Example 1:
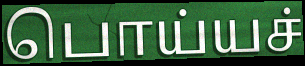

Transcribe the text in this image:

பொய்யச்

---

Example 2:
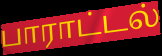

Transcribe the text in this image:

பாராட்டல்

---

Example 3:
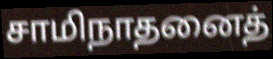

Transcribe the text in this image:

சாமிநாதனைத்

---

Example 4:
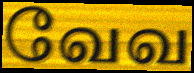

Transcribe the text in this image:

வேவ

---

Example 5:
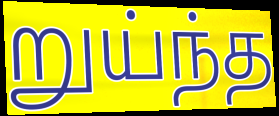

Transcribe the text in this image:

றுய்ந்த